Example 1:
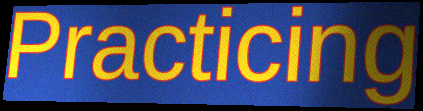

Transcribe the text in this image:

Practicing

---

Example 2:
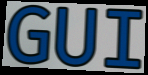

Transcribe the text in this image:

GUI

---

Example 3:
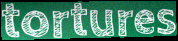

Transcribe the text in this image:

tortures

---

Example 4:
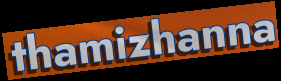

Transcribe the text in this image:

thamizhanna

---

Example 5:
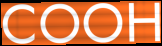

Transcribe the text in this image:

COOH